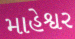
માહેશ્વર